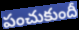
పంచుకుందీ